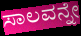
ಸಾಲವನ್ನೇ